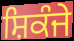
ਸ਼ਿਕੰਜੇ